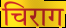
चिराग